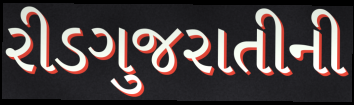
રીડગુજરાતીની